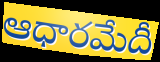
ఆధారమేదీ